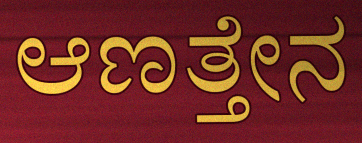
ಆಣತ್ತೇನ